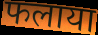
फलाया